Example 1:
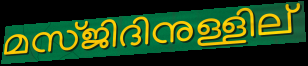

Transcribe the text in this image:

മസ്ജിദിനുള്ളില്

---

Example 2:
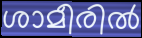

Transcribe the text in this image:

ശാമീരിൽ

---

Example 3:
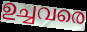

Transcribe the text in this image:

ഉച്ചവരെ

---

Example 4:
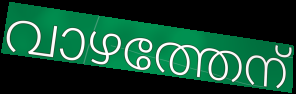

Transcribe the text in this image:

വാഴത്തേന്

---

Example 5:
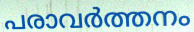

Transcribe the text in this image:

പരാവർത്തനം